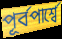
পূর্বপার্শ্বে